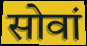
सोवां